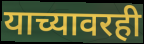
याच्यावरही